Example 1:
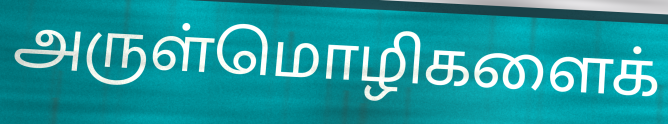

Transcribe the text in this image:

அருள்மொழிகளைக்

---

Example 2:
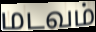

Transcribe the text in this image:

மடவம்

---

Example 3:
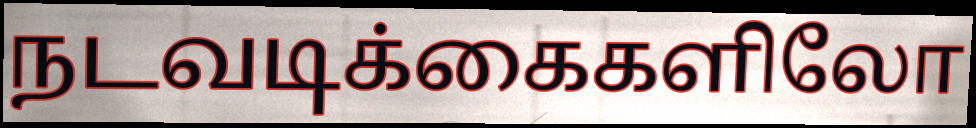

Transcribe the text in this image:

நடவடிக்கைகளிலோ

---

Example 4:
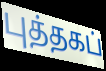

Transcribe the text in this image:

புத்தகப்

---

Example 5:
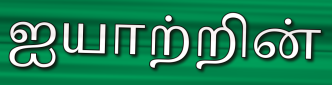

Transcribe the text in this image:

ஐயாற்றின்